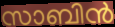
സാബിൻ